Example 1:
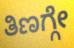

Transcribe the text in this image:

ತಿಣಗ್ಗೇ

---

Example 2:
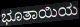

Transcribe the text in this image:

ಭೂತಾಯಿಯ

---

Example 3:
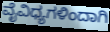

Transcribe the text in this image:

ವೈವಿಧ್ಯಗಳಿಂದಾಗಿ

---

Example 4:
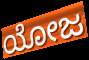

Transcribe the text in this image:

ಯೋಜ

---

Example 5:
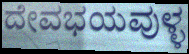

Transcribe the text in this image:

ದೇವಭಯವುಳ್ಳ